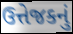
ઉત્તેજકનું